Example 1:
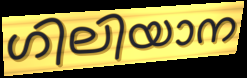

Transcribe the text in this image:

ഗിലിയാന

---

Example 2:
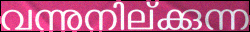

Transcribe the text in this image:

വന്നുനില്ക്കുന്ന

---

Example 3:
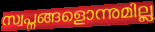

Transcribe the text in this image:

സ്വപ്നങ്ങളൊന്നുമില്ല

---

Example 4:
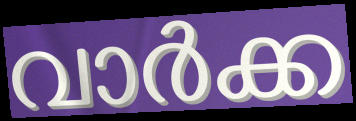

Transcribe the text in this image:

വാർക്ക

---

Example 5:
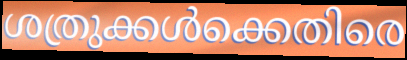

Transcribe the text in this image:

ശത്രുക്കൾക്കെതിരെ